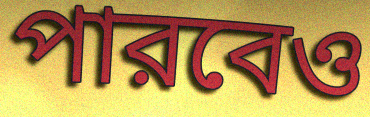
পারবেও